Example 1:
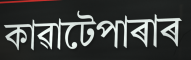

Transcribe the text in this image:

কাৱাটেপাৰাৰ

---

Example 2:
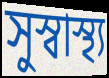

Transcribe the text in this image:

সুস্বাস্থ্য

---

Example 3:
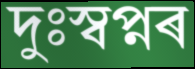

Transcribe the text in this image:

দুঃস্বপ্নৰ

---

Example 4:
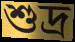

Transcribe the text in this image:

শুদ্ৰ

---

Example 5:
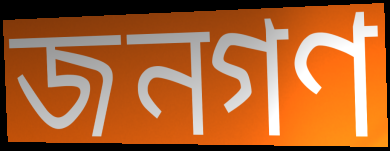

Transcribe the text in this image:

জনগণ